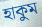
হাকুম